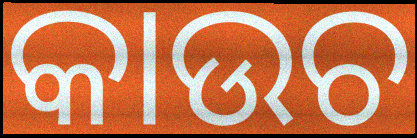
କାଉଚ